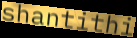
shantithi